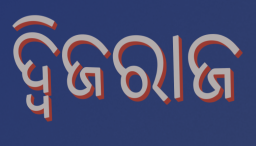
ଦ୍ୱିଜରାଜ